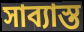
সাব্যাস্ত